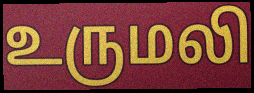
உருமலி